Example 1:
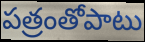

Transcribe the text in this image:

పత్రంతోపాటు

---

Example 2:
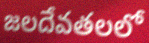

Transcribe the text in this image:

జలదేవతలలో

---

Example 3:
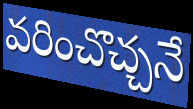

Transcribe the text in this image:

వరించొచ్చనే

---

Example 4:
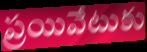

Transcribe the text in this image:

ప్రయివేటుకు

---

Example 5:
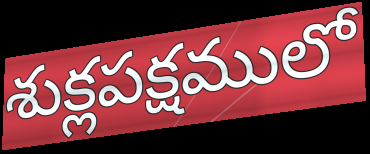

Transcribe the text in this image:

శుక్లపక్షములో